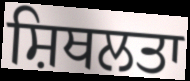
ਸ਼ਿਥਲਤਾ